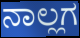
ನಾಲ್ಲಗ